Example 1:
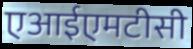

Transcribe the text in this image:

एआईएमटीसी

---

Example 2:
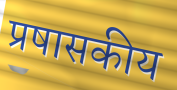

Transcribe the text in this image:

प्रषासकीय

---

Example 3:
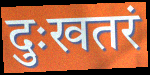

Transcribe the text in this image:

दुःखतरं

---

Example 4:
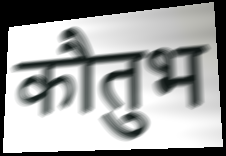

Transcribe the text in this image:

कौतुभ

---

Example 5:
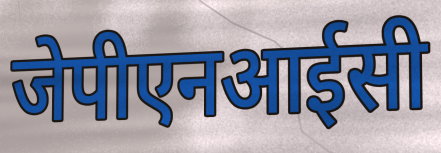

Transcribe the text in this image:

जेपीएनआईसी